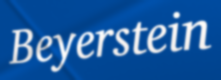
Beyerstein